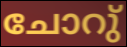
ചോറു്